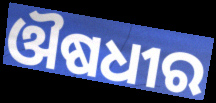
ଔଷଧୀର